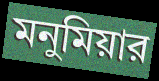
মনুমিয়ার